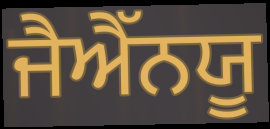
ਜੈਐੱਨਯੂ